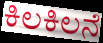
ಕಿಲಕಿಲನೆ